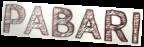
PABARI